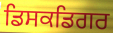
ਡਿਸਕਡਿਗਰ